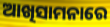
ଆଖିସାମନାରେ